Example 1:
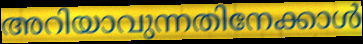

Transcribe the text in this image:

അറിയാവുന്നതിനേക്കാൾ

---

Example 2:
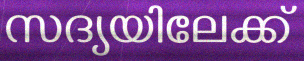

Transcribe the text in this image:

സദ്യയിലേക്ക്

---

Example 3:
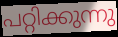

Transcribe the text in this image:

പറ്റിക്കുന്നു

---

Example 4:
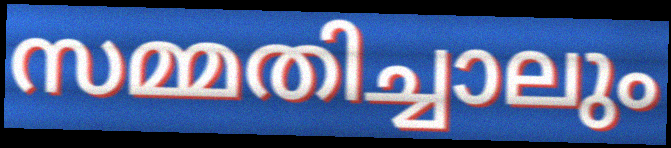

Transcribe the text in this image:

സമ്മതിച്ചാലും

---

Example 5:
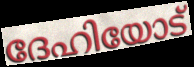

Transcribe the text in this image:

ദേഹിയോട്